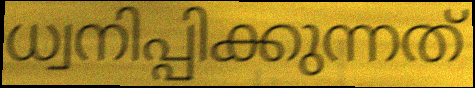
ധ്വനിപ്പിക്കുന്നത്